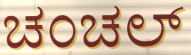
ಚಂಚಲ್